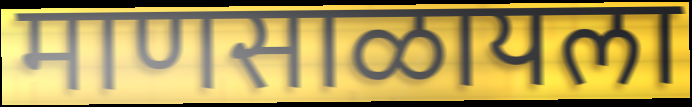
माणसाळायला